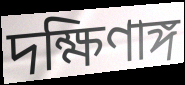
দক্ষিণাঙ্গ